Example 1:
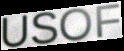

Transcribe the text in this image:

USOF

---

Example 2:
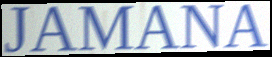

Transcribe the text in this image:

JAMANA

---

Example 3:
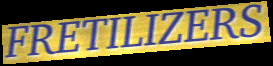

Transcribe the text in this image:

FRETILIZERS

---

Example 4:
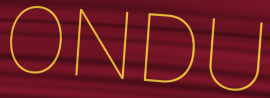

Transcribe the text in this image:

ONDU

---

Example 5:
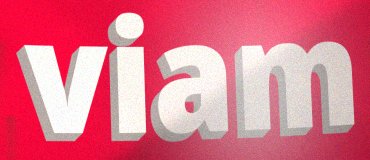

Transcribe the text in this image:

viam